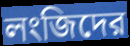
লংজিদের